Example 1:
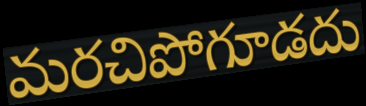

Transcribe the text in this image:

మరచిపోగూడదు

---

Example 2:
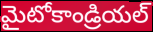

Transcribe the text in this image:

మైటోకాండ్రియల్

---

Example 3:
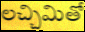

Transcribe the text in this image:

లచ్చిమితో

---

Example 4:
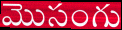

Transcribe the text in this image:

మొసంగు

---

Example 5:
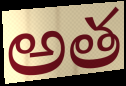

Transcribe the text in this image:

అత